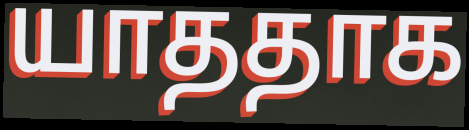
யாததாக